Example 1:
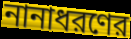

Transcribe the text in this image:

নানাধরণের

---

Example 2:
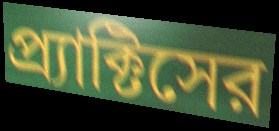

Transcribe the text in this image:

প্র্যাক্টিসের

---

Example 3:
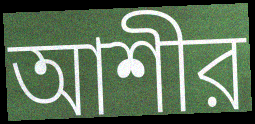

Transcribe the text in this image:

আশীর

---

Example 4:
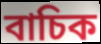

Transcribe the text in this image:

বাচিক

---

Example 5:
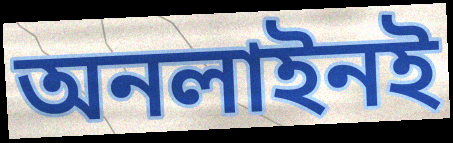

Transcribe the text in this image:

অনলাইনই